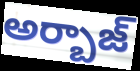
అర్బాజ్